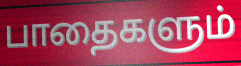
பாதைகளும்